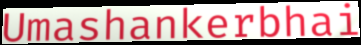
Umashankerbhai